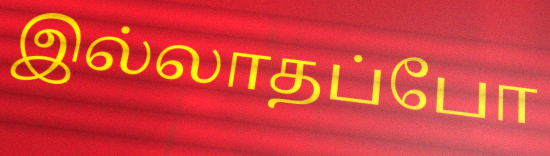
இல்லாதப்போ